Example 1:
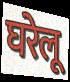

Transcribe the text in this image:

घरेलू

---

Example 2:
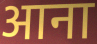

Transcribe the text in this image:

आना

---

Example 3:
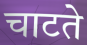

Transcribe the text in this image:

चाटते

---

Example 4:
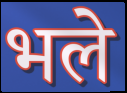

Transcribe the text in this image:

भले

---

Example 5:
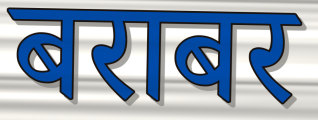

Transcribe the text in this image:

बराबर